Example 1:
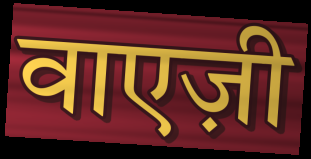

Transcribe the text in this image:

वाएज़ी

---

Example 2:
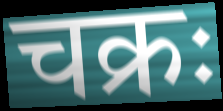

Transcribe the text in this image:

चक्रः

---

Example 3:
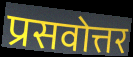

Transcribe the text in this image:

प्रसवोत्तर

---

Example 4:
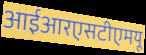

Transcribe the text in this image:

आईआरएसटीएमयू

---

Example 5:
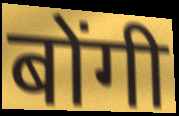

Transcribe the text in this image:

बोंगी